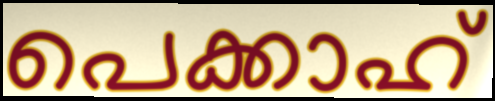
പെക്കാഹ്